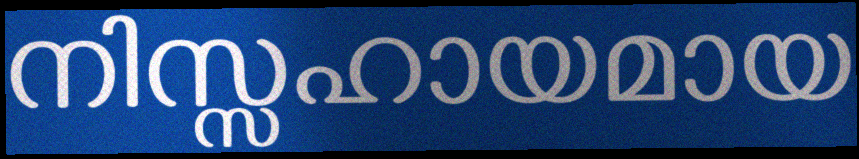
നിസ്സഹായമായ